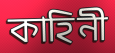
কাহিনী